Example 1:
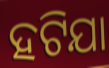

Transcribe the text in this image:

ହଟିଯା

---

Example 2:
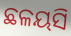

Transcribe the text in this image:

ଛଳୟସି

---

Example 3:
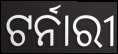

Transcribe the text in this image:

ଟର୍ନାରୀ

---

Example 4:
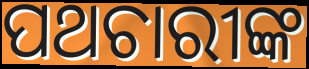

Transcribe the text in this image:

ପଥଚାରୀଙ୍କ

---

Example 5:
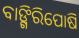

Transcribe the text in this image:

ବାଙ୍ଗିରିପୋଷି